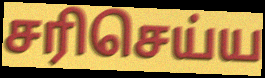
சரிசெய்ய